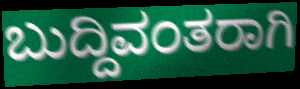
ಬುದ್ದಿವಂತರಾಗಿ